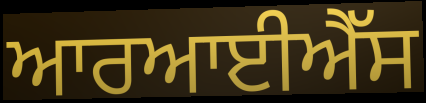
ਆਰਆਈਐੱਸ